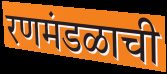
रणमंडळाची